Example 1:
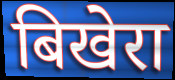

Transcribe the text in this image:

बिखेरा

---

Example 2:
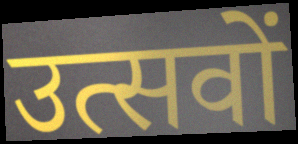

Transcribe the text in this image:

उत्सवों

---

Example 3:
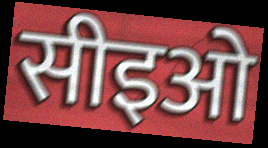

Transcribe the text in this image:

सीइओ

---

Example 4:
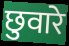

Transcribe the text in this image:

छुवारे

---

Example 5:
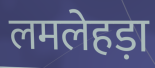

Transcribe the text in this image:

लमलेहड़ा